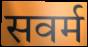
सवर्म